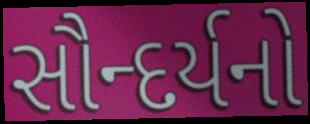
સૌન્દર્યનો